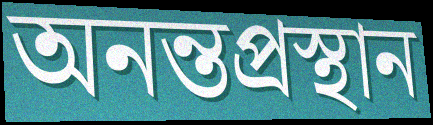
অনন্তপ্রস্থান